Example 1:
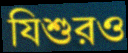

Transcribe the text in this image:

যিশুরও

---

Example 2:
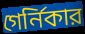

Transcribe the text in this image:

গের্নিকার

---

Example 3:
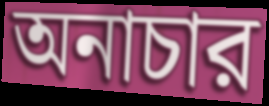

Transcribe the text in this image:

অনাচার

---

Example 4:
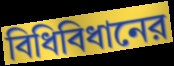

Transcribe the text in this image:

বিধিবিধানের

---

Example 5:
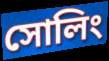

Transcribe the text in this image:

সোলিং